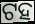
ଟହ